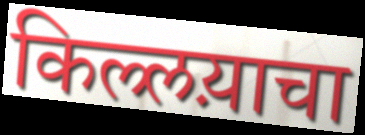
किल्लय़ाचा